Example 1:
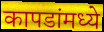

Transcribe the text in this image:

कापडांमध्ये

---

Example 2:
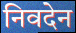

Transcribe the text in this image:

निवदेन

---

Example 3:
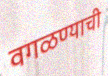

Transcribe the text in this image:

वगळण्याची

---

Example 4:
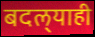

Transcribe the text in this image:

बदल्याही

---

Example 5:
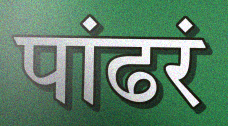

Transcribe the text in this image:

पांढरं